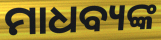
ମାଧବ୍ୟଙ୍କ